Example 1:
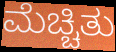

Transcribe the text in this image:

ಮೆಚ್ಚಿತು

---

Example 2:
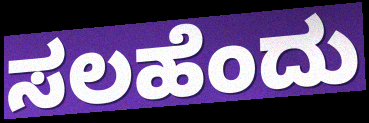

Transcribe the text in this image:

ಸಲಹೆಂದು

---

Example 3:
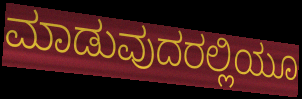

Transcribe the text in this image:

ಮಾಡುವುದರಲ್ಲಿಯೂ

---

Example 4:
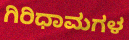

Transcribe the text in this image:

ಗಿರಿಧಾಮಗಳ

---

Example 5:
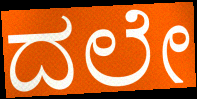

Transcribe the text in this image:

ದಲೇ